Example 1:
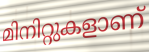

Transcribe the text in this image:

മിനിറ്റുകളാണ്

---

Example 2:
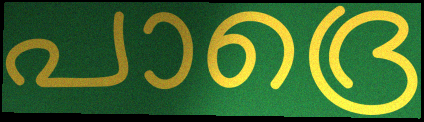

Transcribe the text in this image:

പാദ്രെ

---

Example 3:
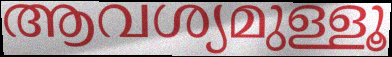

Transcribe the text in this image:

ആവശ്യമുള്ളൂ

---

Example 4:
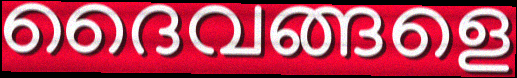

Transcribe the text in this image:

ദൈവങ്ങളെ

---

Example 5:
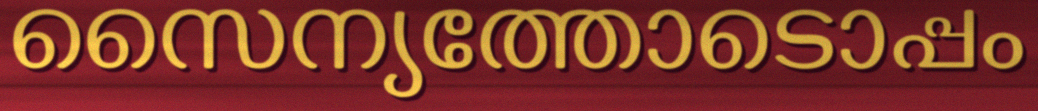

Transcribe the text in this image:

സൈന്യത്തോടൊപ്പം